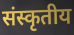
संस्कृतीय